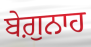
ਬੇਗ਼ੁਨਾਹ